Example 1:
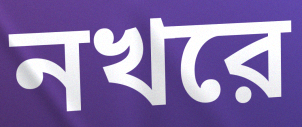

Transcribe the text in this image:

নখরে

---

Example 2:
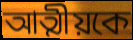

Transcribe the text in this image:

আত্মীয়কে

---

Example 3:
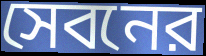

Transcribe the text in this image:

সেবনের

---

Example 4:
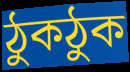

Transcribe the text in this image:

ঠুকঠুক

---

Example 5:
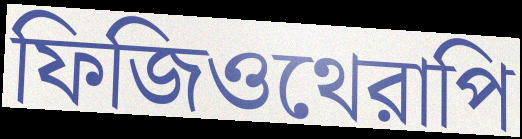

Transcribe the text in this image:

ফিজিওথেরাপি